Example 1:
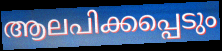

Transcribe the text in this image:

ആലപിക്കപ്പെടും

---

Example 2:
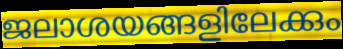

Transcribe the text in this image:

ജലാശയങ്ങളിലേക്കും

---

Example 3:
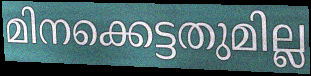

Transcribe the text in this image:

മിനക്കെട്ടതുമില്ല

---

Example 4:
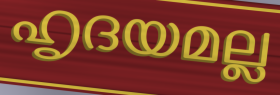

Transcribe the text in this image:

ഹൃദയമല്ല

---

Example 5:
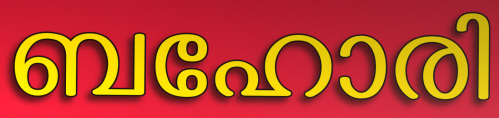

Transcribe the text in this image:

ബഹോരി